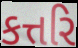
કત્તરિ